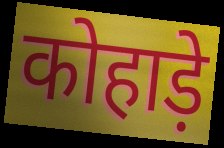
कोहाड़े